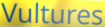
Vultures